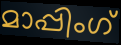
മാപ്പിംഗ്